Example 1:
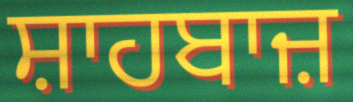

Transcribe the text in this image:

ਸ਼ਾਹਬਾਜ਼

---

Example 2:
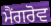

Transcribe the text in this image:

ਮੈਂਗਰੋਵ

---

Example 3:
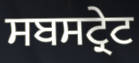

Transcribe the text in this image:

ਸਬਸਟ੍ਰੇਟ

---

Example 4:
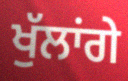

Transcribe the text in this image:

ਖੁੱਲਾਂਗੇ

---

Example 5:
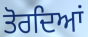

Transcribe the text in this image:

ਤੋਰਦਿਆਂ